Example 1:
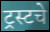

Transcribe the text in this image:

ट्रस्टचे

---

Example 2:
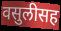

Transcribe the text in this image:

वसुलीसह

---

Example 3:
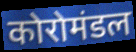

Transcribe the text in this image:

कोरोमंडल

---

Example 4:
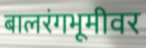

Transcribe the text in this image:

बालरंगभूमीवर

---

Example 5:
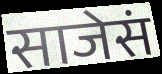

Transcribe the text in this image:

साजेसं